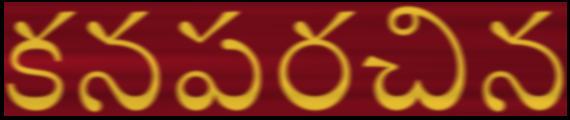
కనపరచిన